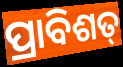
ପ୍ରାବିଶତ୍